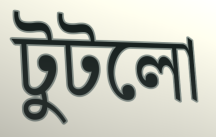
টুটলো